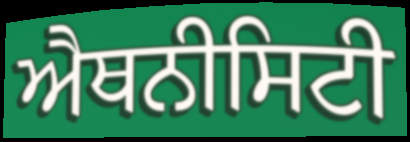
ਐਥਨੀਸਿਟੀ